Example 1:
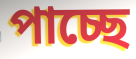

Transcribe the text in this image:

পাচ্ছে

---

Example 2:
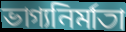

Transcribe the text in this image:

ভাগ্যনির্মাতা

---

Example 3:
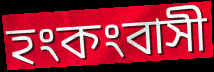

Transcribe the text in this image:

হংকংবাসী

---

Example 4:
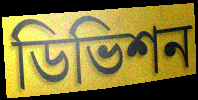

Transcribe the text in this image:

ডিভিশন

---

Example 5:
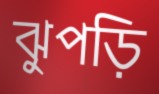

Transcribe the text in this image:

ঝুপড়ি